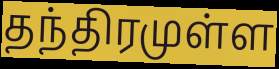
தந்திரமுள்ள